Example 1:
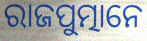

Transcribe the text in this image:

ରାଜପୁତ୍ମାନେ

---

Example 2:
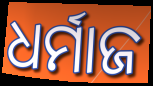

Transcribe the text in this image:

ଧର୍ମାଜ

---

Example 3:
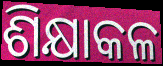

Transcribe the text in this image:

ଶିକ୍ଷାକଳ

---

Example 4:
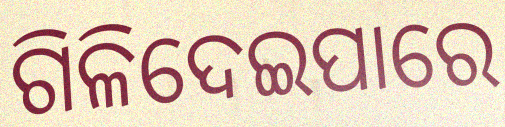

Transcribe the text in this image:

ଗିଳିଦେଇପାରେ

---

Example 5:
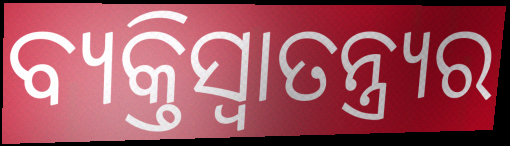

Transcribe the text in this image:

ବ୍ୟକ୍ତିସ୍ୱାତନ୍ତ୍ର୍ୟର